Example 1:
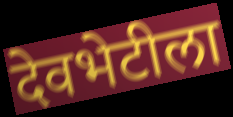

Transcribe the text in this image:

देवभेटीला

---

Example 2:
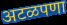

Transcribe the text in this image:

अटळपणा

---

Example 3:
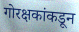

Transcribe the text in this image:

गोरक्षकांकडून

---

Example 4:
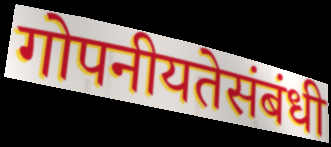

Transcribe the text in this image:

गोपनीयतेसंबंधी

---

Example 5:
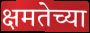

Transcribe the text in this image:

क्षमतेच्या